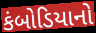
કંબોડિયાનો